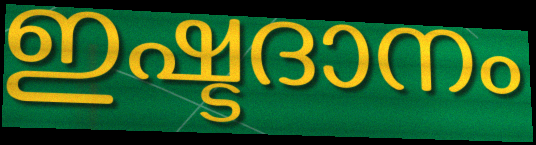
ഇഷ്ടദാനം